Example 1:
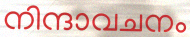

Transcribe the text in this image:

നിന്ദാവചനം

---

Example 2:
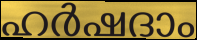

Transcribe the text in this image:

ഹർഷദാം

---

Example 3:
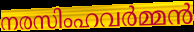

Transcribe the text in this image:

നരസിംഹവർമ്മൻ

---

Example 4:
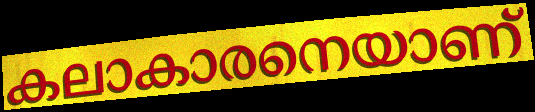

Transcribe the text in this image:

കലാകാരനെയാണ്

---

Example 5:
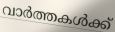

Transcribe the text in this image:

വാർത്തകൾക്ക്